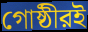
গোষ্ঠীরই